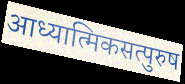
आध्यात्मिकसत्पुरुष